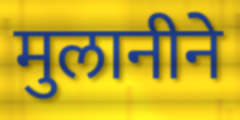
मुलानीने